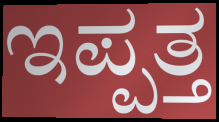
ಇಪ್ಪತ್ತ